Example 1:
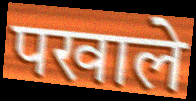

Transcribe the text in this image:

पखाले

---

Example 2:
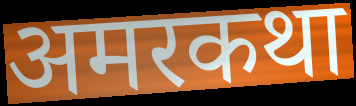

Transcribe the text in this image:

अमरकथा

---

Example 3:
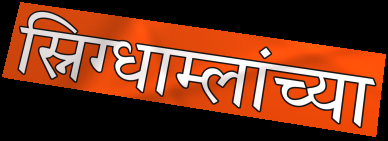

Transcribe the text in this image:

स्निग्धाम्लांच्या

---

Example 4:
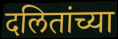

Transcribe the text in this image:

दलितांच्या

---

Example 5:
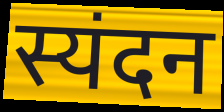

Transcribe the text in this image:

स्यंदन